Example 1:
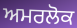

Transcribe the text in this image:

ਅਮਰਲੋਕ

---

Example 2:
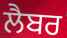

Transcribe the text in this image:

ਲੈਬਰ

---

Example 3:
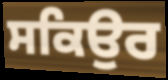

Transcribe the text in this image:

ਸਕਿਉਰ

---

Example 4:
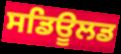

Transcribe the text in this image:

ਸਡਿਊਲਡ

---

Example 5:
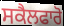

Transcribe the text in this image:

ਸਕੈਲਫਾਰੋ